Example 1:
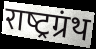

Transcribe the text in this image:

राष्ट्रग्रंथ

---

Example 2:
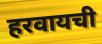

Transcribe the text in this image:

हरवायची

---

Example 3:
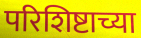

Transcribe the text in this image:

परिशिष्टाच्या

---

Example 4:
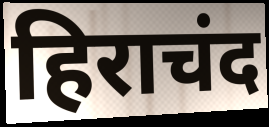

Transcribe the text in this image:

हिराचंद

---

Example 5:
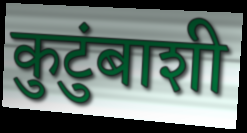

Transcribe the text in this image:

कुटुंबाशी